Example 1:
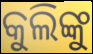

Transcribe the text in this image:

କୁଲିଙ୍କୁ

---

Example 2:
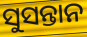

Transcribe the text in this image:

ସୁସନ୍ତାନ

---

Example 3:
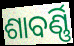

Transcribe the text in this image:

ଶାବର୍ଣ୍ଣି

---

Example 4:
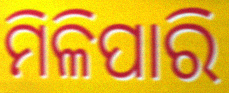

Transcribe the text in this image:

ମିଳିପାରି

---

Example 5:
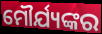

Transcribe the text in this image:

ମୌର୍ଯ୍ୟଙ୍କର